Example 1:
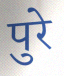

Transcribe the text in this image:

पुरे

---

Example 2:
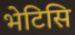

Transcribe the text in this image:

भेटिसि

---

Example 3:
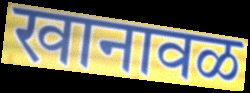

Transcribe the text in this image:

खानावळ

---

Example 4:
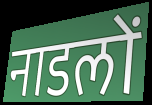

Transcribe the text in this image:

नाडलों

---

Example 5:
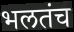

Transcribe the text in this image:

भलतंच